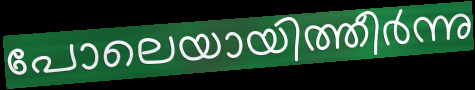
പോലെയായിത്തീർന്നു